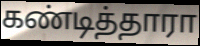
கண்டித்தாரா